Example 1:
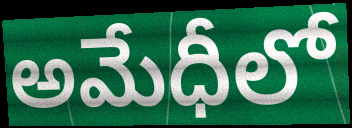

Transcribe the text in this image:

అమేధీలో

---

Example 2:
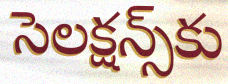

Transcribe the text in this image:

సెలక్షన్స్‌కు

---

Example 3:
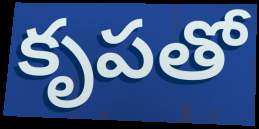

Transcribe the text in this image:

కృపతో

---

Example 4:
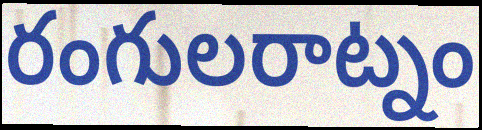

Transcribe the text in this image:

రంగులరాట్నం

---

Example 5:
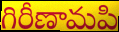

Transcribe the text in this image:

గిరీణామపి